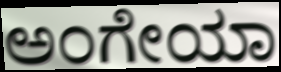
ಅಂಗೇಯಾ